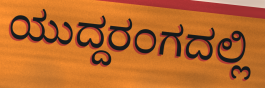
ಯುದ್ದರಂಗದಲ್ಲಿ